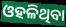
ଓହଳିଥିବା